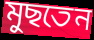
মুছতেন